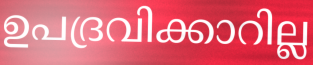
ഉപദ്രവിക്കാറില്ല